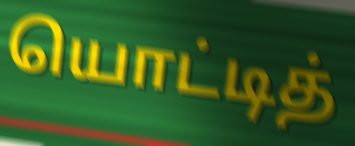
யொட்டித்